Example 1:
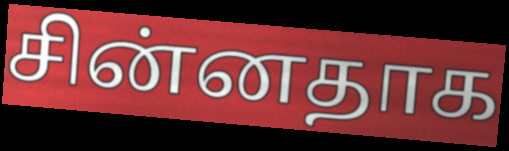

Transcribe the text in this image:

சின்னதாக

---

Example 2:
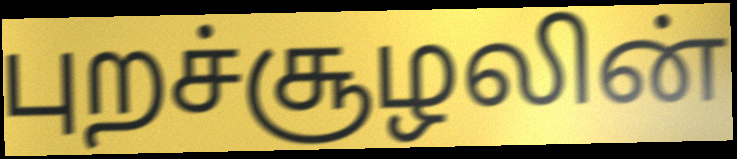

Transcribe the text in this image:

புறச்சூழலின்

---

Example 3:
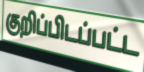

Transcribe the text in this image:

குறிப்பிடப்பட்ட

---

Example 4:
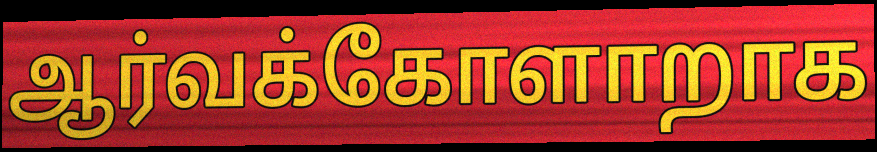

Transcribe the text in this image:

ஆர்வக்கோளாறாக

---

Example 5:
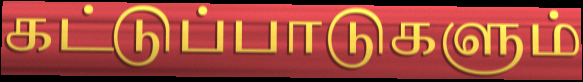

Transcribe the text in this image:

கட்டுப்பாடுகளும்